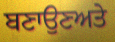
ਬਣਾਉਣਅਤੇ